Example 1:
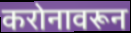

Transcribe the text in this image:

करोनावरून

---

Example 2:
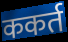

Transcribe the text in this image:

ककर्त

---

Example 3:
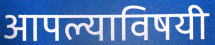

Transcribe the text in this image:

आपल्याविषयी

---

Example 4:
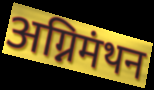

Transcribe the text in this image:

अग्निमंथन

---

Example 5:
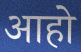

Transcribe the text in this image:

आहो